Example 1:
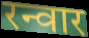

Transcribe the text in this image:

रन्वार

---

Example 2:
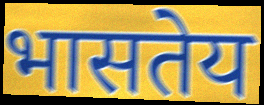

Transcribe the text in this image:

भासतेय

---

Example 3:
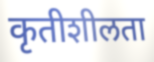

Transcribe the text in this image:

कृतीशीलता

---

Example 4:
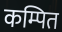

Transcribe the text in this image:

कम्पित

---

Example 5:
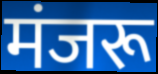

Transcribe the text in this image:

मंजरू